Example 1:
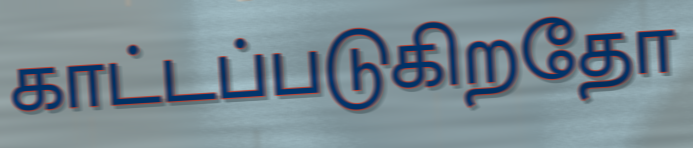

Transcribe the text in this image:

காட்டப்படுகிறதோ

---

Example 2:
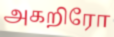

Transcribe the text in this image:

அகறிரோ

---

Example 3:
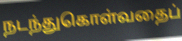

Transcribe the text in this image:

நடந்துகொள்வதைப்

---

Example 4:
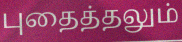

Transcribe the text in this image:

புதைத்தலும்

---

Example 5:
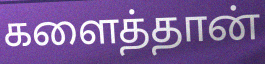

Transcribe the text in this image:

களைத்தான்